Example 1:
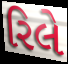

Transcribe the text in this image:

રિલે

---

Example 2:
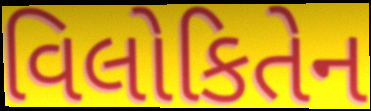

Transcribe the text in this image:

વિલોકિતેન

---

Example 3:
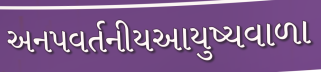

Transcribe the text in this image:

અનપવર્તનીયઆયુષ્યવાળા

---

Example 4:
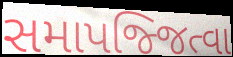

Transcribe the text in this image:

સમાપજ્જિત્વા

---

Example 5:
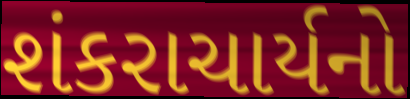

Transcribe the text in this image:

શંકરાચાર્યનો